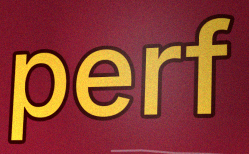
perf